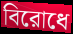
বিরোধে